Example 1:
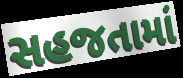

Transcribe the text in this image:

સહજતામાં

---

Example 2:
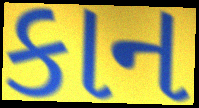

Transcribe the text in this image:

કાન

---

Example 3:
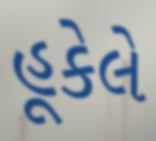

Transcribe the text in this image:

હૂકેલે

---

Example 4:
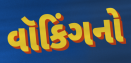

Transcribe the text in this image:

વૉકિંગનો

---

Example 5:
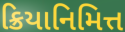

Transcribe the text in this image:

ક્રિયાનિમિત્ત